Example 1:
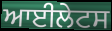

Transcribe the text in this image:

ਆਈਲੇਟਸ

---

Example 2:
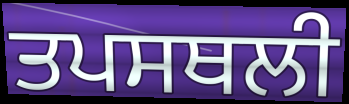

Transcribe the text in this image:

ਤਪਸਥਲੀ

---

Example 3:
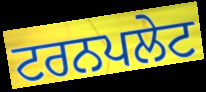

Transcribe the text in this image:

ਟਰਨਪਲੇਟ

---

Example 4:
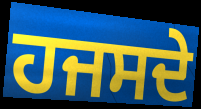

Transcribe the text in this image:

ਹਜਸਦੇ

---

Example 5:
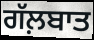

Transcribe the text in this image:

ਗੱਲ਼ਬਾਤ